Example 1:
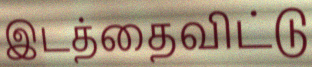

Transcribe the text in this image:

இடத்தைவிட்டு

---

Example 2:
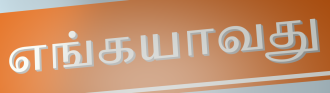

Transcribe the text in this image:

எங்கயாவது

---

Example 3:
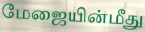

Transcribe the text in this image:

மேஜையின்மீது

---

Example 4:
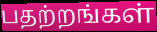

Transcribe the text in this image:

பதற்றங்கள்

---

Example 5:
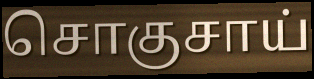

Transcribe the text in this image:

சொகுசாய்